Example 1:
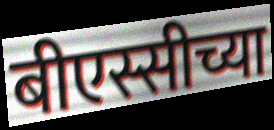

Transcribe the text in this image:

बीएस्सीच्या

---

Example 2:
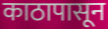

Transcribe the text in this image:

काठापासून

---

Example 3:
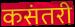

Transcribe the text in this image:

कसंतरी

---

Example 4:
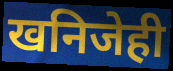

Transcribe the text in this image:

खनिजेही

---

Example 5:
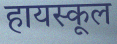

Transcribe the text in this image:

हायस्‍कूल